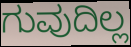
ಗುವುದಿಲ್ಲ